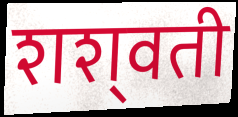
शश्वती